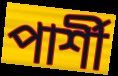
পার্শী